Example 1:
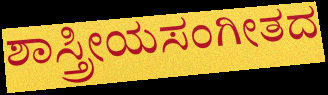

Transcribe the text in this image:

ಶಾಸ್ತ್ರೀಯಸಂಗೀತದ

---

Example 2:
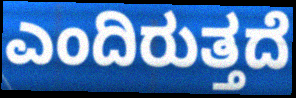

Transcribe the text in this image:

ಎಂದಿರುತ್ತದೆ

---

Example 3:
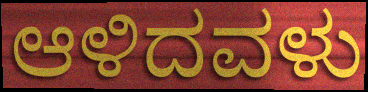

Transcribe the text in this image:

ಆಳಿದವಳು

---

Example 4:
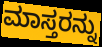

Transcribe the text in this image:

ಮಾಸ್ತರನ್ನು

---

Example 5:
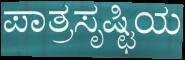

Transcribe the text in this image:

ಪಾತ್ರಸೃಷ್ಟಿಯ